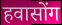
हवासोंग